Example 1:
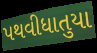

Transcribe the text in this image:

પથવીધાતુયા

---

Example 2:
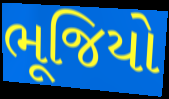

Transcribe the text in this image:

ભૂજિયો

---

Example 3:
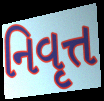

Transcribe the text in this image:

નિવૃત્ત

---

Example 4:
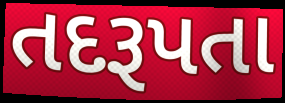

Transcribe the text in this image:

તદરૂપતા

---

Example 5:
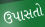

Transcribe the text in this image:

ઉપાસતો